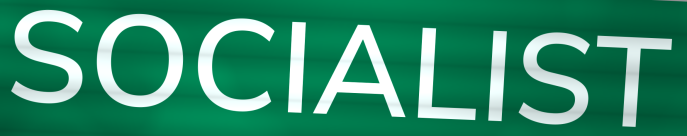
SOCIALIST